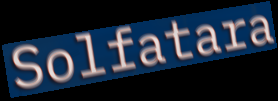
Solfatara